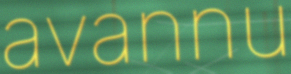
avannu